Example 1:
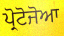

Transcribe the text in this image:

ਪ੍ਰੋਟੋਜੋਆ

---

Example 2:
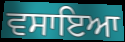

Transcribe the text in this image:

ਵਸਾਇਆ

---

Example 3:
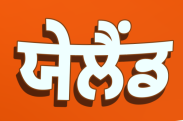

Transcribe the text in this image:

ਯੇਲੈਂਡ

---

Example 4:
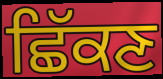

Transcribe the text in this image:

ਛਿੱਕਣ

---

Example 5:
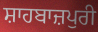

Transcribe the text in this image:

ਸ਼ਾਹਬਾਜ਼ਪੁਰੀ